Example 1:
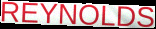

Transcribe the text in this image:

REYNOLDS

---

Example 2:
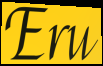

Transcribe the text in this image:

Eru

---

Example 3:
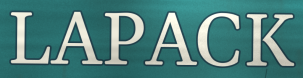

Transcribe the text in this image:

LAPACK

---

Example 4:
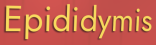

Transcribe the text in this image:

Epididymis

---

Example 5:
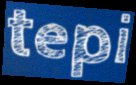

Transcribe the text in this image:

tepi